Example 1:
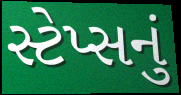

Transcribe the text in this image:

સ્ટેપ્સનું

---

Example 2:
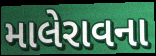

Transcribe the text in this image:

માલેરાવના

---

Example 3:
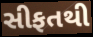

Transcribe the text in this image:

સીફતથી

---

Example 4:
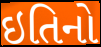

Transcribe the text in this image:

ઇતિનો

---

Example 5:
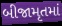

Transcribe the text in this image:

બીજામૃતમાં